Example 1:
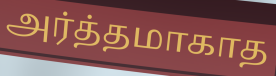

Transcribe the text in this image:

அர்த்தமாகாத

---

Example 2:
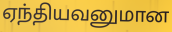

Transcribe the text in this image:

ஏந்தியவனுமான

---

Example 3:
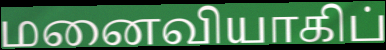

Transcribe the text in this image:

மனைவியாகிப்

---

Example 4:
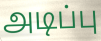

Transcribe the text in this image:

அடிப்பு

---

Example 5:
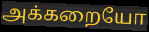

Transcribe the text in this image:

அக்கறையோ